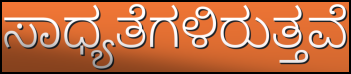
ಸಾಧ್ಯತೆಗಳಿರುತ್ತವೆ